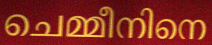
ചെമ്മീനിനെ